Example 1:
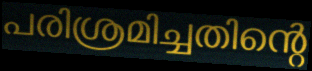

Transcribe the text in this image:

പരിശ്രമിച്ചതിന്റെ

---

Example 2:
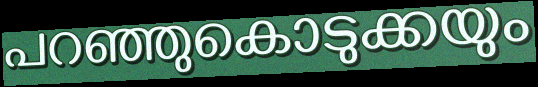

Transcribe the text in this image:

പറഞ്ഞുകൊടുക്കയും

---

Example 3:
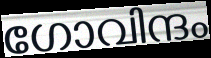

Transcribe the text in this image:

ഗോവിന്ദം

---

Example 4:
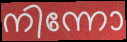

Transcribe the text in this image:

നിന്നോ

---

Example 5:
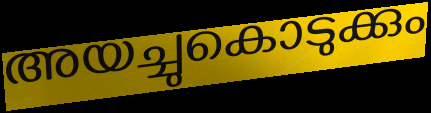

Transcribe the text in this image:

അയച്ചുകൊടുക്കും